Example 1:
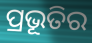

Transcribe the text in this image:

ପ୍ରଭୂତିର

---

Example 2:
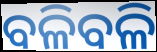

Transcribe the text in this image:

ବଳିବଳି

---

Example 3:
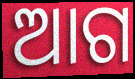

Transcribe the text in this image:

ଆଗ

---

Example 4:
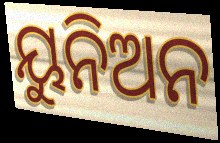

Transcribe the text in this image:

ୟୁନିଅନ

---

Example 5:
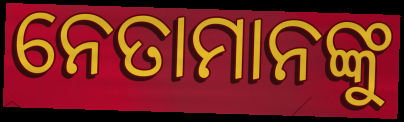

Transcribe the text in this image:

ନେତାମାନଙ୍କୁ